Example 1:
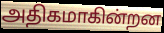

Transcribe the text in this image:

அதிகமாகின்றன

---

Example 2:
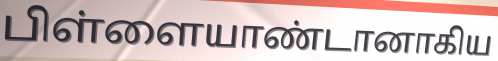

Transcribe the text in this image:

பிள்ளையாண்டானாகிய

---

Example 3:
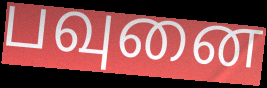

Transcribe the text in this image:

பவுனை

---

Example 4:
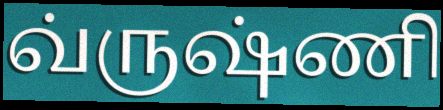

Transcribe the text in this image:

வ்ருஷ்ணி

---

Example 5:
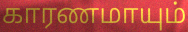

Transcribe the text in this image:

காரணமாயும்